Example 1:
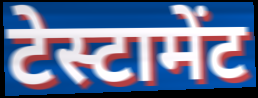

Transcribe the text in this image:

टेस्टामेंट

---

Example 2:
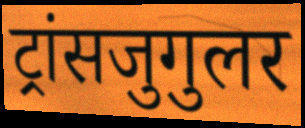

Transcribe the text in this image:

ट्रांसजुगुलर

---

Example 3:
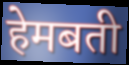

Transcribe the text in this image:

हेमबती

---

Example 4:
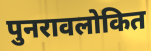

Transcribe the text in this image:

पुनरावलोकित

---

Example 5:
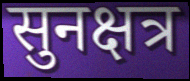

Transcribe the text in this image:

सुनक्षत्र